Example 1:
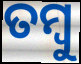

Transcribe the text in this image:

ତମ୍ବୁ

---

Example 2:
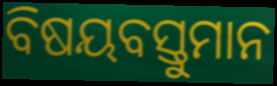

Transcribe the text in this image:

ବିଷୟବସ୍ତୁମାନ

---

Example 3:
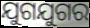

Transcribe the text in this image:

ଯୁଗଯୁଗର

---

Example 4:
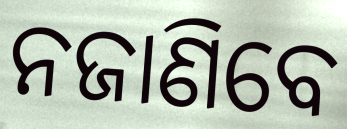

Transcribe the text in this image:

ନଜାଣିବେ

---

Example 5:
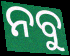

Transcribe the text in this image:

ନବୁ